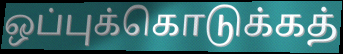
ஒப்புக்கொடுக்கத்